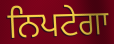
ਨਿਪਟੇਗਾ